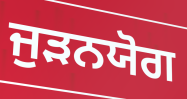
ਜੁੜਨਯੋਗ